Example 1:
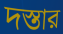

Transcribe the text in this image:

দস্তার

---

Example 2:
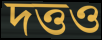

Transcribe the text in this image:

দত্তও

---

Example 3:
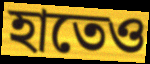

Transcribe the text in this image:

হাতেও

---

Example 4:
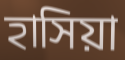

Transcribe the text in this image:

হাসিয়া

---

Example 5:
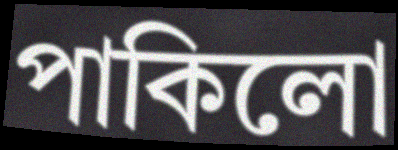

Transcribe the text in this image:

পাকিলো